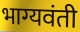
भाग्यवंती